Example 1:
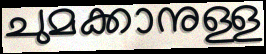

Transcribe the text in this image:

ചുമക്കാനുള്ള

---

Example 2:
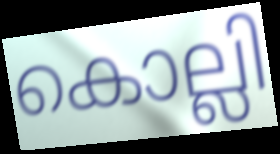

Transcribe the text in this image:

കൊല്ലി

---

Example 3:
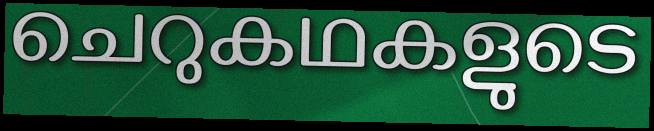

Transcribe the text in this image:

ചെറുകഥകളുടെ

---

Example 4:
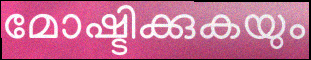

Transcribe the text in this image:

മോഷ്ടിക്കുകയും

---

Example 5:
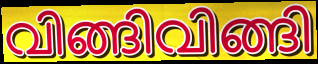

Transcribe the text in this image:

വിങ്ങിവിങ്ങി